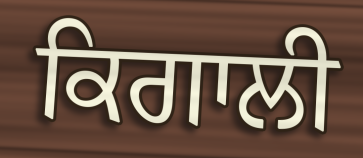
ਕਿਗਾਲੀ